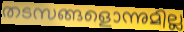
തടസങ്ങളൊന്നുമില്ല